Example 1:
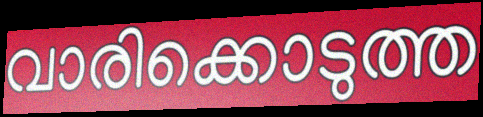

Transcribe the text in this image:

വാരിക്കൊടുത്ത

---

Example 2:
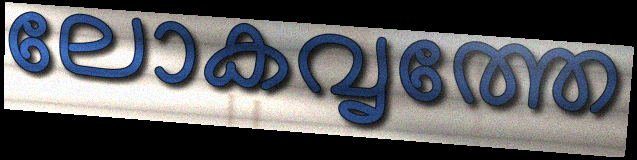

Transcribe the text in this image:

ലോകവൃത്തേ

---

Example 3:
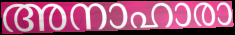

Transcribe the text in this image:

അനാഹാരാ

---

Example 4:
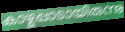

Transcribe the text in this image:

കാഴ്ചപ്പാടായിരുന്നു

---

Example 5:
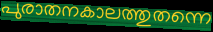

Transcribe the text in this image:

പുരാതനകാലത്തുതന്നെ